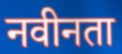
नवीनता